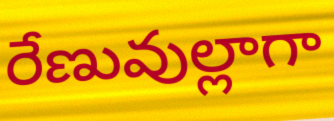
రేణువుల్లాగా